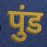
पुंड